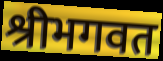
श्रीभगवत